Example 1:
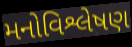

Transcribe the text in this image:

મનોવિશ્લેષણ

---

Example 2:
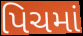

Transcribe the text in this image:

પિચમાં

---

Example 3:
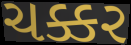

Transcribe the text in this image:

ચક્કર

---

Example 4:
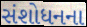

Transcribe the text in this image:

સંશોધનના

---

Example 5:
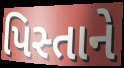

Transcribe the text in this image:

પિસ્તાને